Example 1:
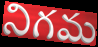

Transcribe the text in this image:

నిగమ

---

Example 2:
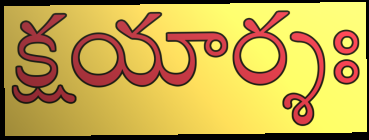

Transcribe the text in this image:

క్షయార్శః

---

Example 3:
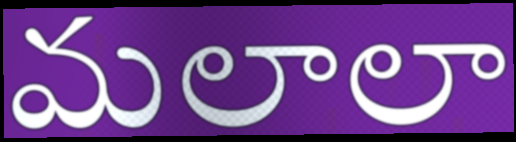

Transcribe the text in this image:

మలాలా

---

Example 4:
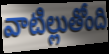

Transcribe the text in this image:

వాటిల్లుతోంది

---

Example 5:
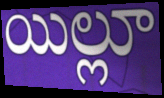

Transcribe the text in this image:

యిల్లూ